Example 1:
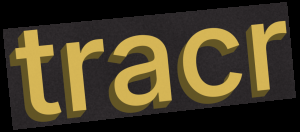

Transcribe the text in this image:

tracr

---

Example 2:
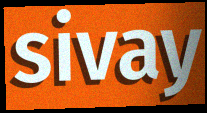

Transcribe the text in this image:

sivay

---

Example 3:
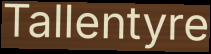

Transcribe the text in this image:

Tallentyre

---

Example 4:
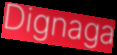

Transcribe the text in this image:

Dignaga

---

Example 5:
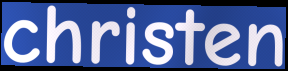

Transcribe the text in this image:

christen